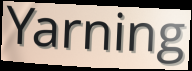
Yarning